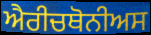
ਐਰੀਚਥੋਨੀਅਸ